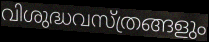
വിശുദ്ധവസ്ത്രങ്ങളും